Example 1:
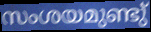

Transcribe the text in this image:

സംശയമുണ്ടു്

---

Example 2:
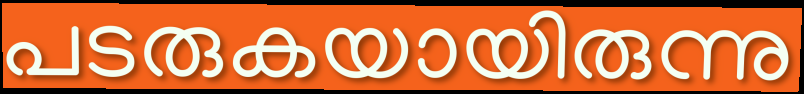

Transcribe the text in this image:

പടരുകയായിരുന്നു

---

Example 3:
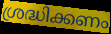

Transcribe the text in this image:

ശ്രദ്ധിക്കണം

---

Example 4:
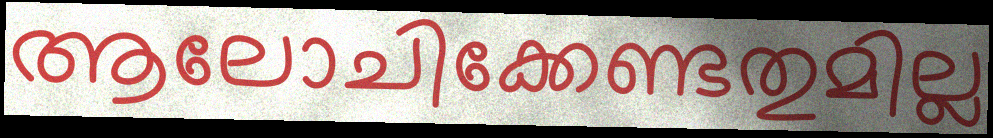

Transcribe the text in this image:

ആലോചിക്കേണ്ടതുമില്ല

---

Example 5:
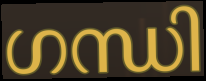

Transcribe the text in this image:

ഗന്ധി